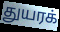
துயரக்